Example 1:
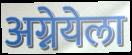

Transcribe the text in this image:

अग्नेयेला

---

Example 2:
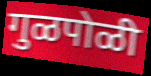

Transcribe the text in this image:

गुळपोळी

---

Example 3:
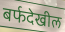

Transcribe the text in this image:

बर्फदेखील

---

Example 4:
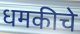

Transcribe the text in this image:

धमकीचे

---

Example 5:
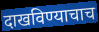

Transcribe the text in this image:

दाखविण्याचाच